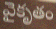
వైకృతం